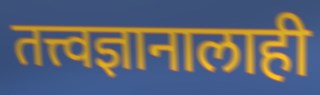
तत्त्वज्ञानालाही